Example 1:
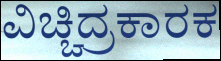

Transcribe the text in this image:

ವಿಚ್ಚಿದ್ರಕಾರಕ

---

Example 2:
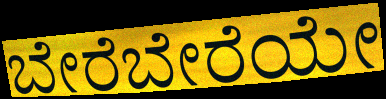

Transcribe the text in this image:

ಬೇರೆಬೇರೆಯೇ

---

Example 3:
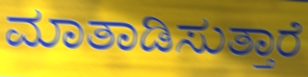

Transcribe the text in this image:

ಮಾತಾಡಿಸುತ್ತಾರೆ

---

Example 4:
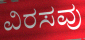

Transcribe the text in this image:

ವಿರಸವು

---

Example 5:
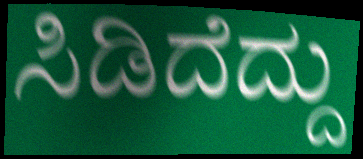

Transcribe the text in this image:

ಸಿಡಿದೆದ್ದು